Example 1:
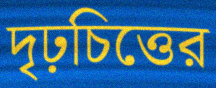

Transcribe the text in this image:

দৃঢ়চিত্তের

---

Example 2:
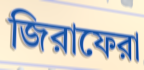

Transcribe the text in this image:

জিরাফেরা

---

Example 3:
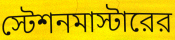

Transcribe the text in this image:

স্টেশনমাস্টারের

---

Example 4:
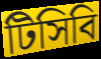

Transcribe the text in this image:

টিসিবি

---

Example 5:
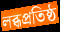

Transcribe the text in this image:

লব্ধপ্রতিষ্ঠ